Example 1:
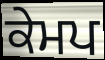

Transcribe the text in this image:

ਕੇਮਪ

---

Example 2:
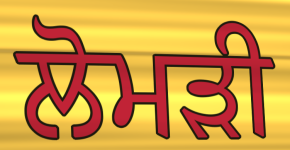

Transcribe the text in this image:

ਲੋਮੜੀ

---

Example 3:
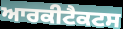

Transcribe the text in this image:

ਆਰਕੀਟੈਕਟਸ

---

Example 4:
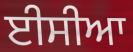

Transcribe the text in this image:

ਈਸੀਆ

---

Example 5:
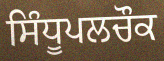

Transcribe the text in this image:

ਸਿੰਧੂਪਲਚੌਕ